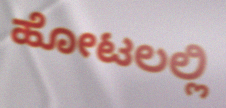
ಹೋಟಲಲ್ಲಿ